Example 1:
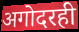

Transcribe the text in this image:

अगोदरही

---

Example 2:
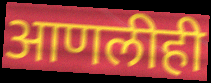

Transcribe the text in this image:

आणलीही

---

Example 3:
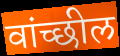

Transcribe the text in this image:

वांच्छील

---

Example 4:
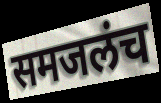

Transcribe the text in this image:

समजलंच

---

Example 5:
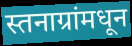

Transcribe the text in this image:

स्तनाग्रांमधून